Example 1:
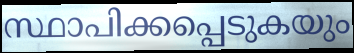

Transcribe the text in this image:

സ്ഥാപിക്കപ്പെടുകയും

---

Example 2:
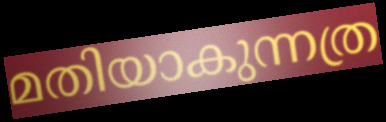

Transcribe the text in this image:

മതിയാകുന്നത്ര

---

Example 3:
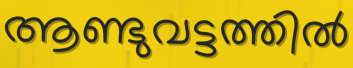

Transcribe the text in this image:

ആണ്ടുവട്ടത്തിൽ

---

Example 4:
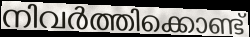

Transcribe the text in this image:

നിവർത്തിക്കൊണ്ട്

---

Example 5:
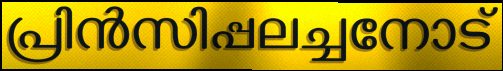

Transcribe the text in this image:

പ്രിൻസിപ്പലച്ചനോട്